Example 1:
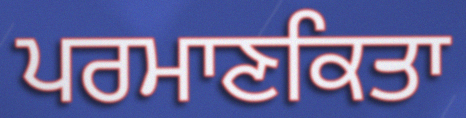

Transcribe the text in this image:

ਪਰਮਾਣਕਿਤਾ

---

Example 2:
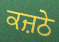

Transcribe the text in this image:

ਕਜ਼ਠੇ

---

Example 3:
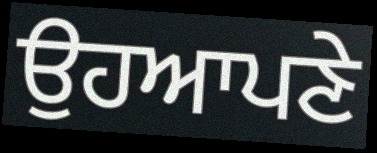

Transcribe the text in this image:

ਉਹਆਪਣੇ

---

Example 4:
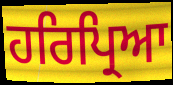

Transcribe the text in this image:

ਹਰਿਪ੍ਰਿਆ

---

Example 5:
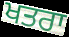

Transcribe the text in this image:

ਖਤਰਾ